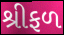
શ્રીફળ